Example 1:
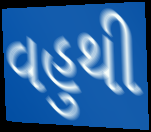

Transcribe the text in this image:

વહુથી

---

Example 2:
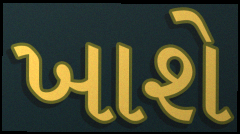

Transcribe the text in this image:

ખાશે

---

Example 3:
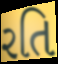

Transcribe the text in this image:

રતિ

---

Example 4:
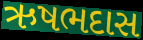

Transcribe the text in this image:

ઋષભદાસ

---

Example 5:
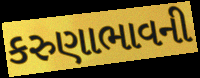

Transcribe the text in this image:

કરુણાભાવની